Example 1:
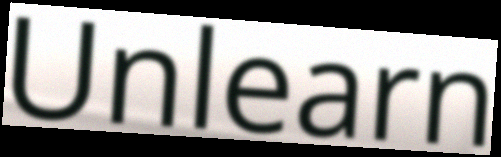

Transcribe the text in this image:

Unlearn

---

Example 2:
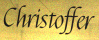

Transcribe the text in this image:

Christoffer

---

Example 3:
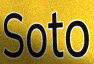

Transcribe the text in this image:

Soto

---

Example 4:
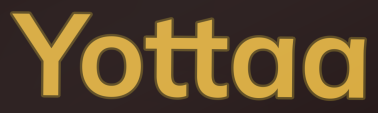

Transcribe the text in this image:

Yottaa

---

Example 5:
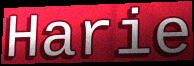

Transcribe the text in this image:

Harie